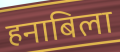
हनाबिला